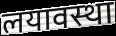
लयावस्था